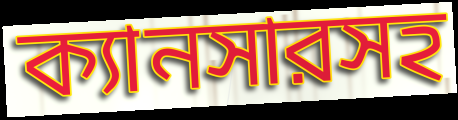
ক্যানসারসহ